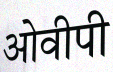
ओवीपी